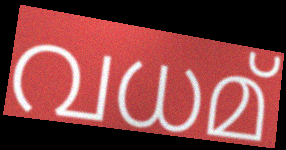
വധമ്